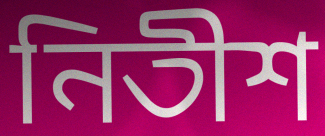
নিতীশ